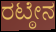
ರಟ್ಠೇನ